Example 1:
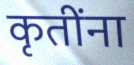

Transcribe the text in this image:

कृतींना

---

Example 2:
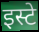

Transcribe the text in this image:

इस्टे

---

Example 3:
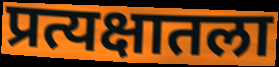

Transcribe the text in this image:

प्रत्यक्षातला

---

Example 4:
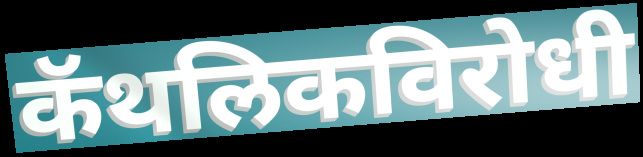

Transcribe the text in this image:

कॅथलिकविरोधी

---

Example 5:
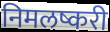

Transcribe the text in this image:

निमलष्करी